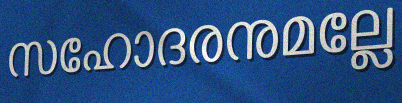
സഹോദരനുമല്ലേ